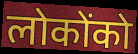
लोकोंको